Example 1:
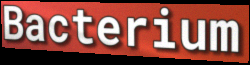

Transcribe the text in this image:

Bacterium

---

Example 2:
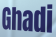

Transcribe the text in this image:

Ghadi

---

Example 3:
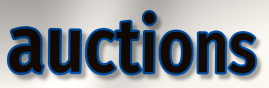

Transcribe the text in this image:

auctions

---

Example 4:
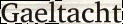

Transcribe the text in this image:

Gaeltacht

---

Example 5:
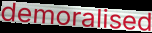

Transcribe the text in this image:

demoralised